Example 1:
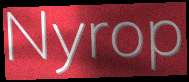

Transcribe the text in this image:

Nyrop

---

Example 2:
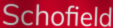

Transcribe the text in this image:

Schofield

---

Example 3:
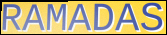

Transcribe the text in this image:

RAMADAS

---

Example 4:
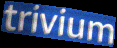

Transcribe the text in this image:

trivium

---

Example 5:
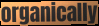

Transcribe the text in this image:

organically